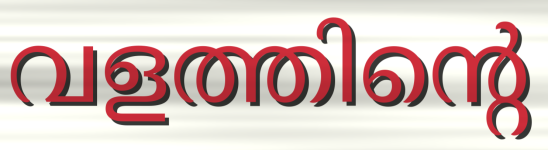
വളത്തിന്റെ